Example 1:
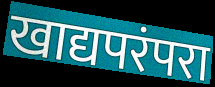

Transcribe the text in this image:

खाद्यपरंपरा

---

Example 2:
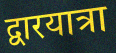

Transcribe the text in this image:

द्वारयात्रा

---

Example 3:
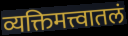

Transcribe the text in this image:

व्यक्तिमत्त्वातलं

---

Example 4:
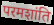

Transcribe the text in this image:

परमशांति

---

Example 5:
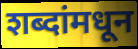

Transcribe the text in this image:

शब्दांमधून